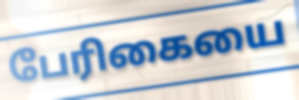
பேரிகையை